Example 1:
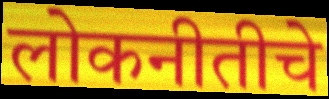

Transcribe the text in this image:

लोकनीतीचे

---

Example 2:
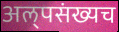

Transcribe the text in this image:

अल्पसंख्यच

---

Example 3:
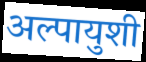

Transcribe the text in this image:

अल्पायुशी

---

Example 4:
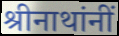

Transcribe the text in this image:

श्रीनाथांनीं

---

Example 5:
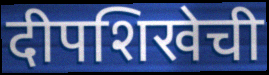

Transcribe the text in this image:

दीपशिखेची